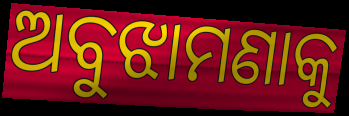
ଅବୁଝାମଣାକୁ